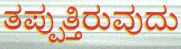
ತಪ್ಪುತ್ತಿರುವುದು